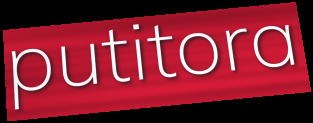
putitora